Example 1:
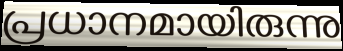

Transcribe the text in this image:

പ്രധാനമായിരുന്നു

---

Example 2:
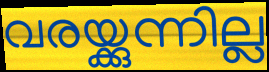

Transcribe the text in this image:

വരയ്ക്കുന്നില്ല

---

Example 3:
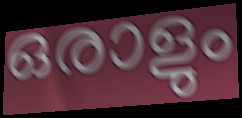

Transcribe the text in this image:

ഒരാളും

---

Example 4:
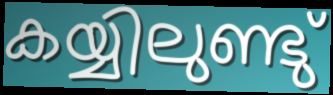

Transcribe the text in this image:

കയ്യിലുണ്ടു്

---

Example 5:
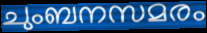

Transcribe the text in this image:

ചുംബനസമരം